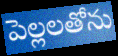
పెల్లలతోను